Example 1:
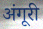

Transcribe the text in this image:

अंगूरी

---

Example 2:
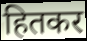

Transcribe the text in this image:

हितकर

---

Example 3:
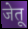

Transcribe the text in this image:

जेतू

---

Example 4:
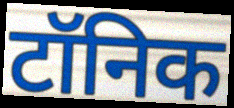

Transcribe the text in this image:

टॉनिक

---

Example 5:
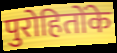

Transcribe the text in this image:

पुरोहितोंके